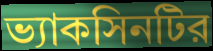
ভ্যাকসিনটির